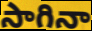
సాగినా